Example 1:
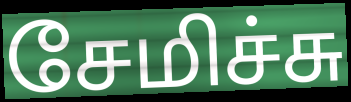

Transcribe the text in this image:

சேமிச்சு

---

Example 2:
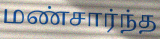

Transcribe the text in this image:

மண்சார்ந்த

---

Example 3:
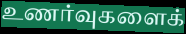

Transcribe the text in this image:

உணர்வுகளைக்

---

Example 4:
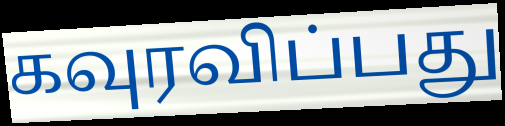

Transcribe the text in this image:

கவுரவிப்பது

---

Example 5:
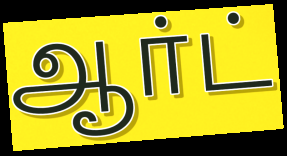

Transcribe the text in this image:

ஆர்ட்